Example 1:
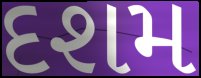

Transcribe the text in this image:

દશમ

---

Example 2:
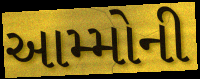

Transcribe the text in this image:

આમ્મોની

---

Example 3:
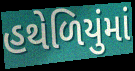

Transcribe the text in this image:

હથેળિયુંમાં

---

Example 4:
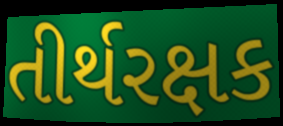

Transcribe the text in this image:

તીર્થરક્ષક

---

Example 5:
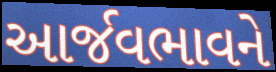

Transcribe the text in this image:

આર્જવભાવને